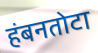
हंबनतोटा